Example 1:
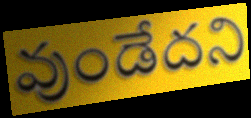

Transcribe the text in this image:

వుండేదని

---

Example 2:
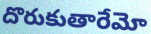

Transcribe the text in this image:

దొరుకుతారేమో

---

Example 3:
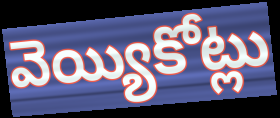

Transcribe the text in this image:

వెయ్యికోట్లు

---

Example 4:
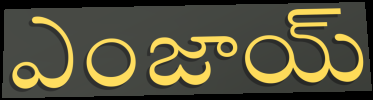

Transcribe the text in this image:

ఎంజాయ్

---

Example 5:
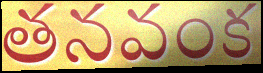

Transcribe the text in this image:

తనవంక